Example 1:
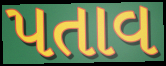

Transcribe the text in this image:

પતાવ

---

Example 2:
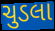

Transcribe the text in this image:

ચુડલા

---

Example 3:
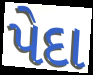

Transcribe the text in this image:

પેદા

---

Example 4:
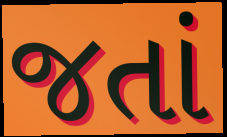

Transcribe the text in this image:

જતાં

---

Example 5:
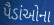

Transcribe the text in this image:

પૈડાંઓના